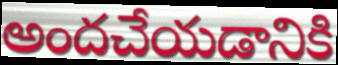
అందచేయడానికి